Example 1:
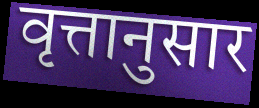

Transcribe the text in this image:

वृत्तानुसार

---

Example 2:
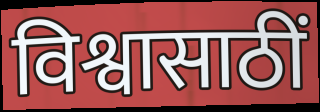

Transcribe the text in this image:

विश्वासाठीं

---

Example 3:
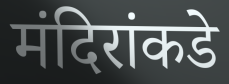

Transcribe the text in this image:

मंदिरांकडे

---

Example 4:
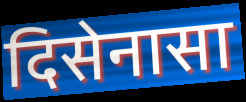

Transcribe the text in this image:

दिसेनासा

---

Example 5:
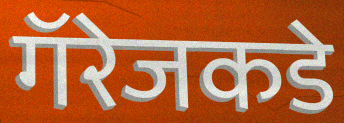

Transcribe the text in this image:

गॅरेजकडे